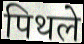
पिथले